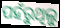
ପହଁରୁଥିଲୁ